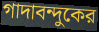
গাদাবন্দুকের